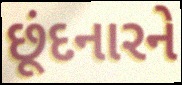
છૂંદનારને